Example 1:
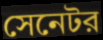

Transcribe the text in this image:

সেনেটর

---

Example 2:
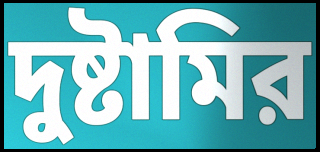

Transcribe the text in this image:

দুষ্টামির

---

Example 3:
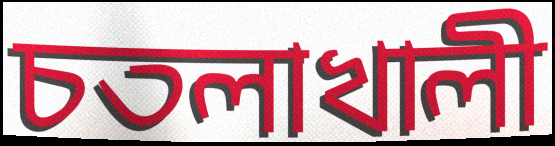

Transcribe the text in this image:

চতলাখালী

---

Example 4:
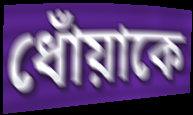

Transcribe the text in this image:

ধোঁয়াকে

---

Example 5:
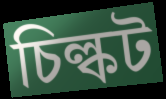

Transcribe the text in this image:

চিল্কট